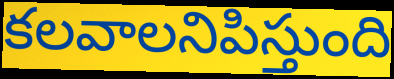
కలవాలనిపిస్తుంది